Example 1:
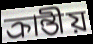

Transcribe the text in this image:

ক্ৰান্তীয়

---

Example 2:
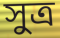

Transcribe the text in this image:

সুত্ৰ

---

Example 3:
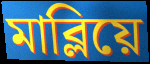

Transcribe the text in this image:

মাব্লিয়ে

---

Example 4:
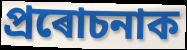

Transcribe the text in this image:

প্ৰৰোচনাক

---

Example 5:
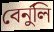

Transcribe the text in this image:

বেৰ্নুলি